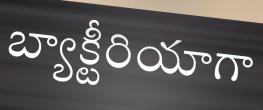
బ్యాక్టీరియాగా